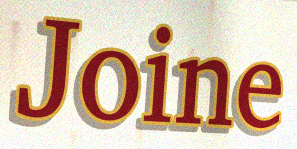
Joine